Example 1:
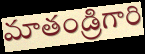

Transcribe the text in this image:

మాతండ్రిగారి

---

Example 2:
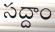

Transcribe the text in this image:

సద్దాం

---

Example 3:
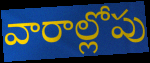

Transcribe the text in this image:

వారాల్లోపు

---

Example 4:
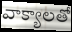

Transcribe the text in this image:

వాక్యాలతో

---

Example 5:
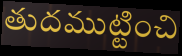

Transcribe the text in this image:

తుదముట్టించి